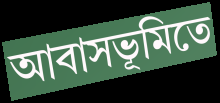
আবাসভূমিতে